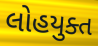
લોહયુક્ત